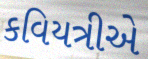
કવિયત્રીએ